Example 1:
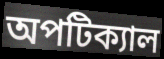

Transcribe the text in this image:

অপটিক্যাল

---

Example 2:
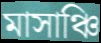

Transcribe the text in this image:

মাসাঞ্চি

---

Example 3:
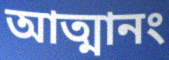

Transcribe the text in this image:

আত্মানং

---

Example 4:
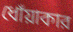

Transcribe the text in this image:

ধোঁয়াকার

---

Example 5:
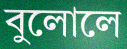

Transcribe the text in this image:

বুলোলে